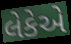
લેકેએ